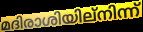
മദിരാശിയില്നിന്ന്